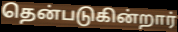
தென்படுகின்றார்